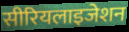
सीरियलाइजेशन